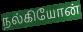
நல்கியோன்